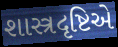
શાસ્ત્રદૃષ્ટિએ